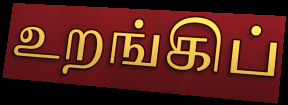
உறங்கிப்